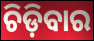
ଚିଡ଼ିବାର